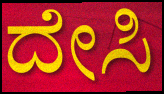
ದೇಸಿ